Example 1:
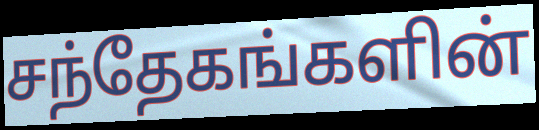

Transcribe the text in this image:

சந்தேகங்களின்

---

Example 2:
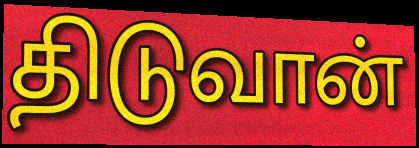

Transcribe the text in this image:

திடுவான்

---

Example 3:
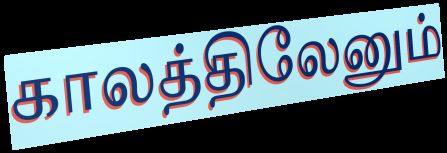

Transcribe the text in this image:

காலத்திலேனும்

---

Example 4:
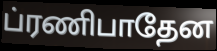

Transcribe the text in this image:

ப்ரணிபாதேன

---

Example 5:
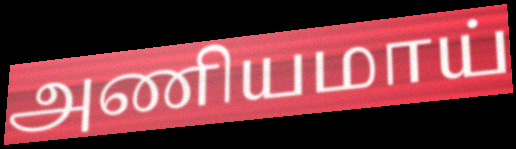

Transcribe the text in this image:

அணியமாய்